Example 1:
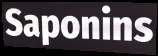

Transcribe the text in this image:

Saponins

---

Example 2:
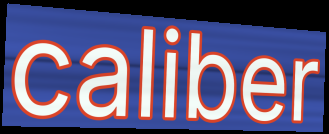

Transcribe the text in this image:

caliber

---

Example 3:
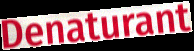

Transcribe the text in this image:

Denaturant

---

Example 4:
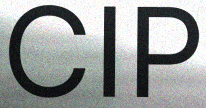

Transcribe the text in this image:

CIP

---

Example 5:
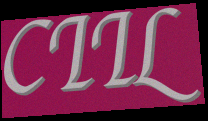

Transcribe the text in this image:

CIIL